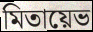
মিতায়েভ